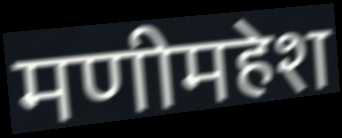
मणीमहेश